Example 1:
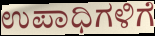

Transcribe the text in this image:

ಉಪಾಧಿಗಳಿಗೆ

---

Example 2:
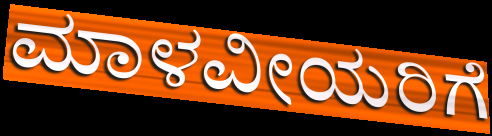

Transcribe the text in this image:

ಮಾಳವೀಯರಿಗೆ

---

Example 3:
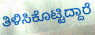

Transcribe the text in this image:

ತಿಳಿಸಿಕೊಟ್ಟಿದ್ದಾರೆ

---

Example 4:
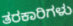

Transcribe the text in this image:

ತರಕಾರಿಗಳು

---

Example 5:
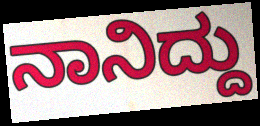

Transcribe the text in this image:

ನಾನಿದ್ದು